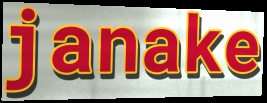
janake